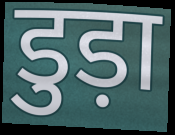
डुड़ा